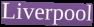
Liverpool